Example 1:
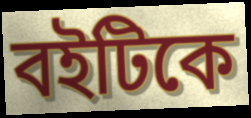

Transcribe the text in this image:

বইটিকে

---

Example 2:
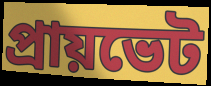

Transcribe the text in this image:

প্রায়ভেট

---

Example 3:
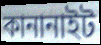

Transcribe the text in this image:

কানানাইট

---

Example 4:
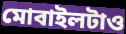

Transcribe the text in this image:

মোবাইলটাও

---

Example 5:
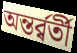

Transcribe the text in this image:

অন্তর্র্বর্তী